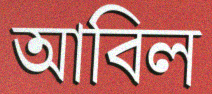
আবিল